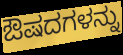
ಔಷದಗಳನ್ನು